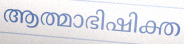
ആത്മാഭിഷിക്ത